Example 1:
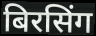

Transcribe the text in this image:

बिरसिंग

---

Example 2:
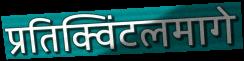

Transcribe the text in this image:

प्रतिक्विंटलमागे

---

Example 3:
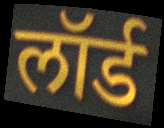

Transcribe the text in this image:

लॉर्ड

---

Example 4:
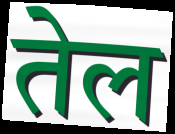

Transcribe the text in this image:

तेल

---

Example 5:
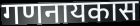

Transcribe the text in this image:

गणनायकास